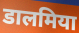
डालमिया